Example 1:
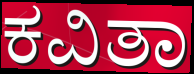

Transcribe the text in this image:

ಕವಿತಾ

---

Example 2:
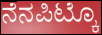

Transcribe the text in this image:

ನೆನಪಿಟ್ಕೊ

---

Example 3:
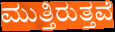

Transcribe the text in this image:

ಮುತ್ತಿರುತ್ತವೆ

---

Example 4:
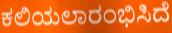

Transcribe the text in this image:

ಕಲಿಯಲಾರಂಭಿಸಿದೆ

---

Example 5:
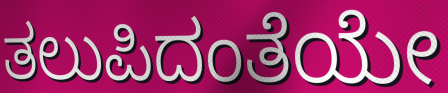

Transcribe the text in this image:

ತಲುಪಿದಂತೆಯೇ